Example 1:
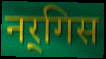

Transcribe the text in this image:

नर्गिस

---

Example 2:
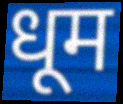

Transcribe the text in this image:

धूम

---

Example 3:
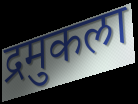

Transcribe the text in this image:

द्रमुकला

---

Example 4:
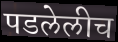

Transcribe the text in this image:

पडलेलीच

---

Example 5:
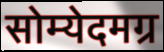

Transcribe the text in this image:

सोम्येदमग्र